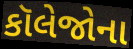
કૉલેજોના